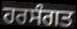
ਹਰਸੰਗਤ